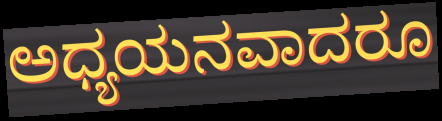
ಅಧ್ಯಯನವಾದರೂ